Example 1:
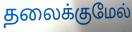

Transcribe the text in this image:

தலைக்குமேல்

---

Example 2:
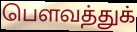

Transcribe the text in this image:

பௌவத்துக்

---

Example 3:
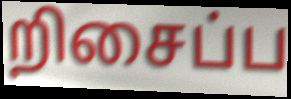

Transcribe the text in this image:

றிசைப்ப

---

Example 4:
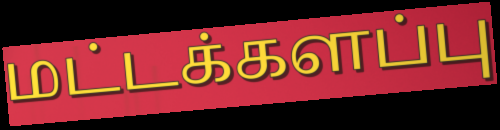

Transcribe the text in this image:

மட்டக்களப்பு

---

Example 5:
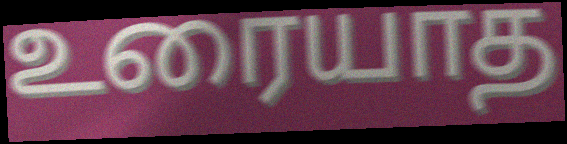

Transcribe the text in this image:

உரையாத